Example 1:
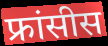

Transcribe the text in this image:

फ्रांसीस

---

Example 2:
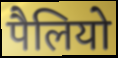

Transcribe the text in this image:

पैलियो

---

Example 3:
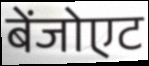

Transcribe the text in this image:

बेंजोएट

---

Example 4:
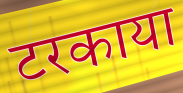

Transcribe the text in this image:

टरकाया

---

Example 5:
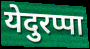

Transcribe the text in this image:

येदुरप्पा